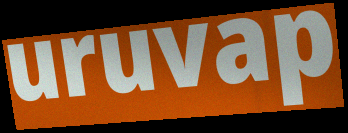
uruvap